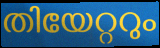
തിയേറ്ററും